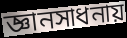
জ্ঞানসাধনায়